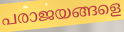
പരാജയങ്ങളെ